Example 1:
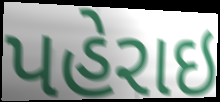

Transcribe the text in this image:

પહેરાઇ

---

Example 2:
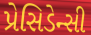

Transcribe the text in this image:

પ્રેસિડેન્સી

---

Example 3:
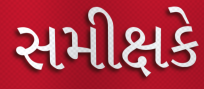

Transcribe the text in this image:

સમીક્ષકે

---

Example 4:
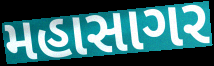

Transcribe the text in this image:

મહાસાગર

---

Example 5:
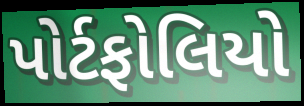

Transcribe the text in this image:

પોર્ટફોલિયો